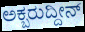
ಅಕ್ಬರುದ್ದೀನ್